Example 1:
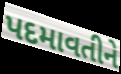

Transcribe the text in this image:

પદમાવતીને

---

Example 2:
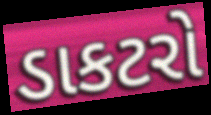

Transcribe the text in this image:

ડાકટરો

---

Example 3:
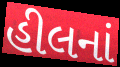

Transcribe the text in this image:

હીલનાં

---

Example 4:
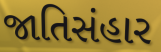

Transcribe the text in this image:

જાતિસંહાર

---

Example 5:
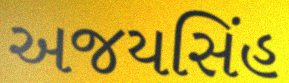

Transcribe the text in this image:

અજયસિંહ